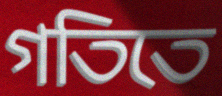
গতিতে